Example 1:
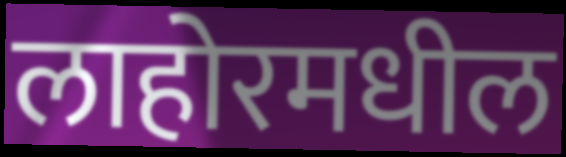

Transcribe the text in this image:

लाहोरमधील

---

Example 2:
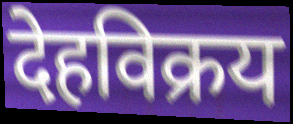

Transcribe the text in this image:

देहविक्रय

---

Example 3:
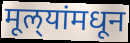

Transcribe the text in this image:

मूल्यांमधून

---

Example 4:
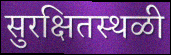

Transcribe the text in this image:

सुरक्षितस्थळी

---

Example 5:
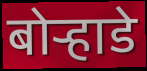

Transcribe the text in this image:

बोर्‍हाडे